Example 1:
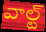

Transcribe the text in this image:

వాల్ట్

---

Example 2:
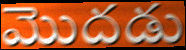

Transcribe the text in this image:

మొదడు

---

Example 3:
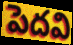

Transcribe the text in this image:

పెదవి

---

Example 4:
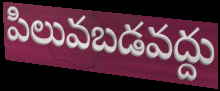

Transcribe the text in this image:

పిలువబడవద్దు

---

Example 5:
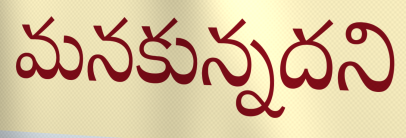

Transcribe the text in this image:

మనకున్నదని